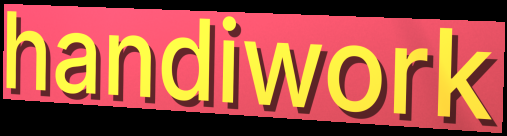
handiwork